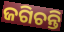
ଜଗିଚନ୍ତି